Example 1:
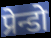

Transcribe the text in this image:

प्रेन्डो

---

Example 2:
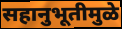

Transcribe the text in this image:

सहानुभूतीमुळे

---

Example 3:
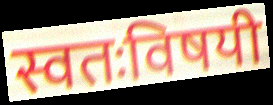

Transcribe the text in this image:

स्वतःविषयी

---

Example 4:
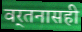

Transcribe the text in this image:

वर्तनासही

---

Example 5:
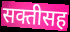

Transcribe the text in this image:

सक्तीसह